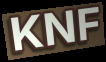
KNF